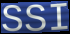
SSI